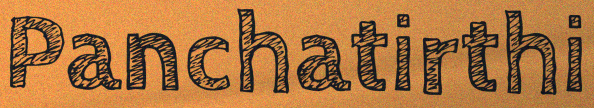
Panchatirthi